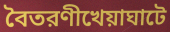
বৈতরণীখেয়াঘাটে